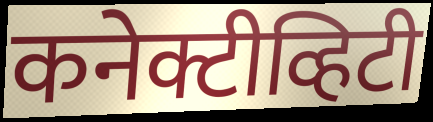
कनेक्टीव्हिटी